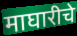
माघारीचे